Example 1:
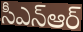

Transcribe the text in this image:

సీఎన్ఆర్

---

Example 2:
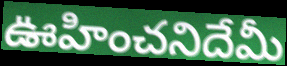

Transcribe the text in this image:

ఊహించనిదేమీ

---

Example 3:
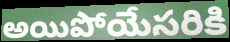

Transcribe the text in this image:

అయిపోయేసరికి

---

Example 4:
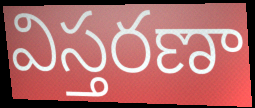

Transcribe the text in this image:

విస్తరణా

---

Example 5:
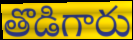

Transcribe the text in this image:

తొడిగారు